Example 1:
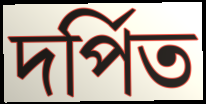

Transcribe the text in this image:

দর্পিত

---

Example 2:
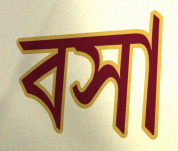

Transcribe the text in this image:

বসা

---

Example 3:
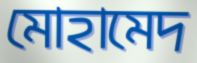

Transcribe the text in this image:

মোহামেদ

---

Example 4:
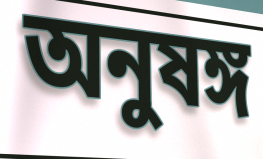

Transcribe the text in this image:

অনুষঙ্গ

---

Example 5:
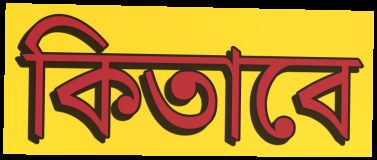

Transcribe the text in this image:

কিতাবে